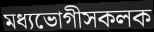
মধ্যভোগীসকলক